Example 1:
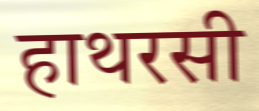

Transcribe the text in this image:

हाथरसी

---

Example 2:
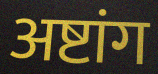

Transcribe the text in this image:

अष्टांग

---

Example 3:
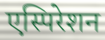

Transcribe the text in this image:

एस्पिरेशन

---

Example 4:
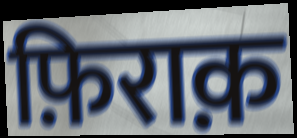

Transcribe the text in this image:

फ़िराक़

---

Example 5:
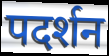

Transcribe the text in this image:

पदर्शन